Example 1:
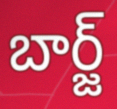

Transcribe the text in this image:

బార్జ్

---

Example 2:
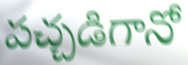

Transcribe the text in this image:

పచ్చడిగానో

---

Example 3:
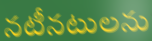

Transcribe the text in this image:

నటీనటులను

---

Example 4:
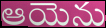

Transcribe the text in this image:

ఆయెను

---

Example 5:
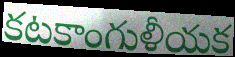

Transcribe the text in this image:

కటకాంగుళీయక